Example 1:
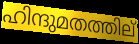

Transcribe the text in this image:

ഹിന്ദുമതത്തില്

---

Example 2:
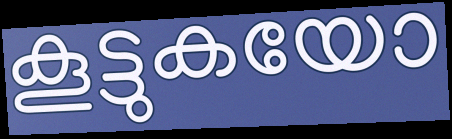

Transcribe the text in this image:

കൂട്ടുകയോ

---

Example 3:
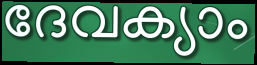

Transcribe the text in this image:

ദേവക്യാം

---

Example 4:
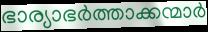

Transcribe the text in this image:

ഭാര്യാഭർത്താക്കന്മാർ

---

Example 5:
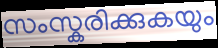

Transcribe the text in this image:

സംസ്കരിക്കുകയും